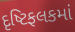
દૃષ્ટિફલકમાં